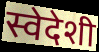
स्वेदेशी